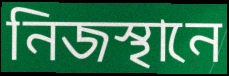
নিজস্থানে